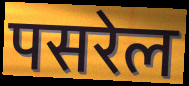
पसरेल